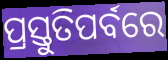
ପ୍ରସ୍ତୁତିପର୍ବରେ